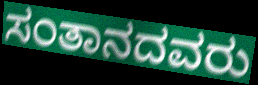
ಸಂತಾನದವರು